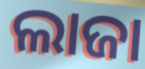
ଲାଜା